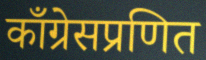
काँग्रेसप्रणित